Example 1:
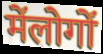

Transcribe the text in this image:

मेंलोगों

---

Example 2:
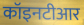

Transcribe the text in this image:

कॉइनटीआर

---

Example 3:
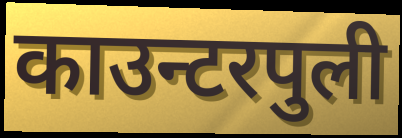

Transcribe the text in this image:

काउन्टरपुली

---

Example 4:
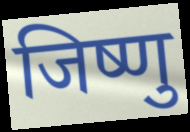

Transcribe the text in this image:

जिष्णु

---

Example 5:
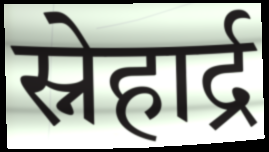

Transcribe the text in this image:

स्नेहार्द्र